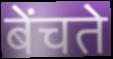
बेंचते